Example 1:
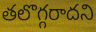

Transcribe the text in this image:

తలొగ్గరాదని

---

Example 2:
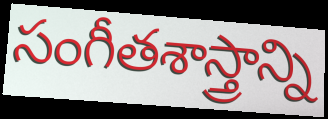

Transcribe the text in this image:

సంగీతశాస్త్రాన్ని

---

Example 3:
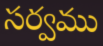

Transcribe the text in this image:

సర్వము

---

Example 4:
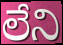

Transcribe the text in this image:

లేని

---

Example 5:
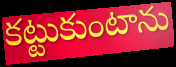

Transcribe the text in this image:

కట్టుకుంటాను